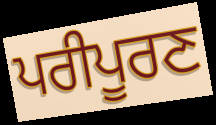
ਪਰੀਪੂਰਣ